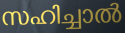
സഹിച്ചാൽ